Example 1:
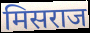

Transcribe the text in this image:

मिसराज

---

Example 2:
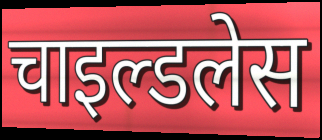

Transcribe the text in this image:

चाइल्डलेस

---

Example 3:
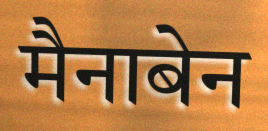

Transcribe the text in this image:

मैनाबेन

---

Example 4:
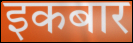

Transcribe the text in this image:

इकबार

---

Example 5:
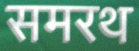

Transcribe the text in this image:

समरथ